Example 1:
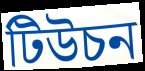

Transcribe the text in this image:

টিউচন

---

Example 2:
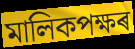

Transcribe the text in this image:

মালিকপক্ষৰ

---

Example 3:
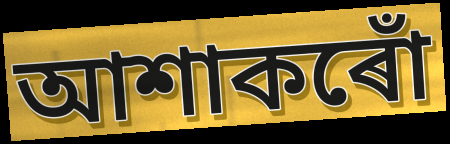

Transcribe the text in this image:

আশাকৰোঁ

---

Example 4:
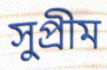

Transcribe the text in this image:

সুপ্ৰীম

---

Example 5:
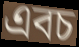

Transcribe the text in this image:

এবচ